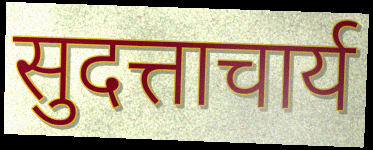
सुदत्ताचार्य